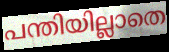
പന്തിയില്ലാതെ